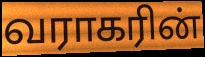
வராகரின்